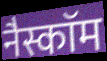
नैस्कॉम